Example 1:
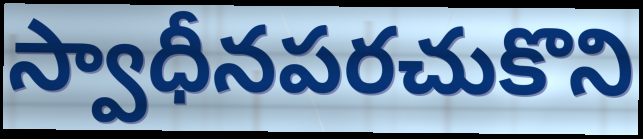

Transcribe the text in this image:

స్వాధీనపరచుకొని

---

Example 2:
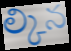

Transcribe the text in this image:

ల్కిన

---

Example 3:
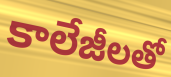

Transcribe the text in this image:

కాలేజీలతో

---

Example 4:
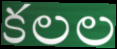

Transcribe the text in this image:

కలల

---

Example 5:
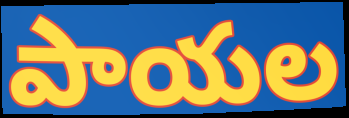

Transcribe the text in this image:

పాయల